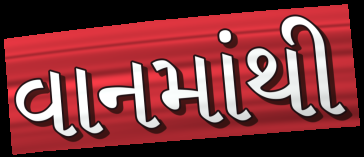
વાનમાંથી